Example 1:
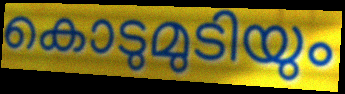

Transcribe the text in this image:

കൊടുമുടിയും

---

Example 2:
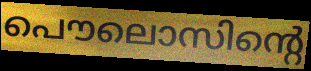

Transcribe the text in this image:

പൌലൊസിന്റെ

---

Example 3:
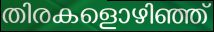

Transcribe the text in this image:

തിരകളൊഴിഞ്ഞ്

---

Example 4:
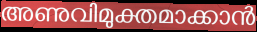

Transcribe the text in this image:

അണുവിമുക്തമാക്കാൻ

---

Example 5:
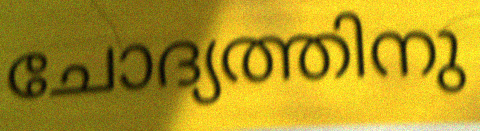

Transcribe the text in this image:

ചോദ്യത്തിനു